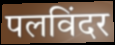
पलविंदर